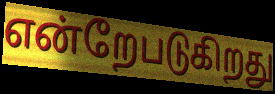
என்றேபடுகிறது